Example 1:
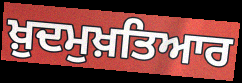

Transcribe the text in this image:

ਖ਼ੁਦਮੁਖ਼ਤਿਆਰ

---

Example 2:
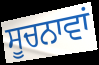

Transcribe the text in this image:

ਸੂਚਨਾਵਾਂ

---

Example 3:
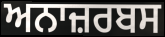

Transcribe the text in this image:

ਅਨਾਜ਼ਰਬਸ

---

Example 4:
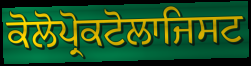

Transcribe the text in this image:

ਕੋਲੋਪ੍ਰੋਕਟੋਲਾਜਿਸਟ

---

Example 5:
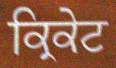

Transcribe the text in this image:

ਕ੍ਰਿਕੇਟ